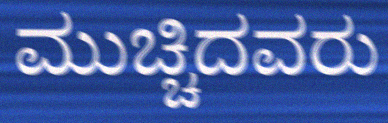
ಮುಚ್ಚಿದವರು